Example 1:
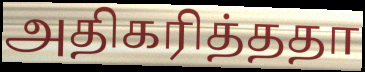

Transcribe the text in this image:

அதிகரித்ததா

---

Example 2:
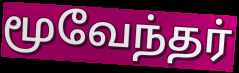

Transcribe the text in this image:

மூவேந்தர்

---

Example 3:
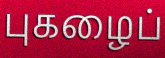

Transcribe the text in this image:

புகழைப்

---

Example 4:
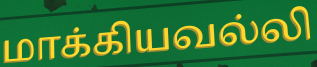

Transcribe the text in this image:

மாக்கியவல்லி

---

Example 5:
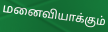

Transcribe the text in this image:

மனைவியாக்கும்